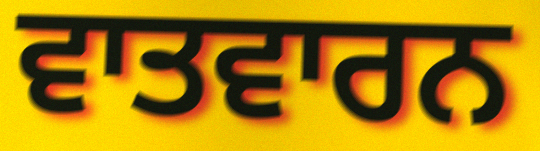
ਵਾਤਵਾਰਨ